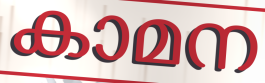
കാമന